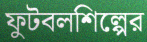
ফুটবলশিল্পের